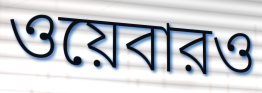
ওয়েবারও